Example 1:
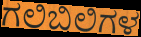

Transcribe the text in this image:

ಗಲಿಬಿಲಿಗಳ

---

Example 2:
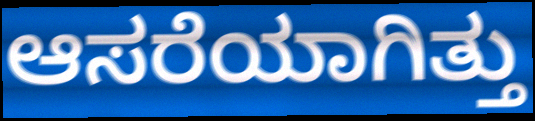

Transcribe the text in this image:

ಆಸರೆಯಾಗಿತ್ತು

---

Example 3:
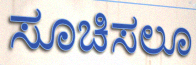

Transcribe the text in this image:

ಸೂಚಿಸಲೂ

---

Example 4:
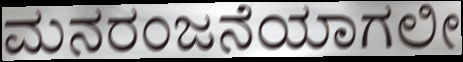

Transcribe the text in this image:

ಮನರಂಜನೆಯಾಗಲೀ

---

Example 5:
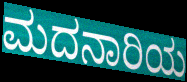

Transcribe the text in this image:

ಮದನಾರಿಯ